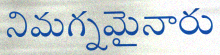
నిమగ్నమైనారు